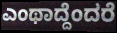
ಎಂಥಾದ್ದೆಂದರೆ